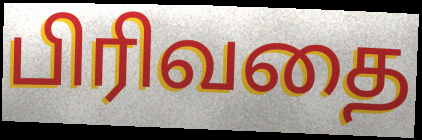
பிரிவதை